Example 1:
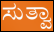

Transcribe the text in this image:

ಸುತ್ವಾ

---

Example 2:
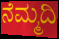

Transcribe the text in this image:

ನೆಮ್ಮದಿ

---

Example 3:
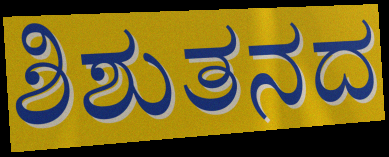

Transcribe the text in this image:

ಶಿಶುತನದ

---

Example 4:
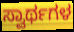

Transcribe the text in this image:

ಸ್ವಾರ್ಥಗಳ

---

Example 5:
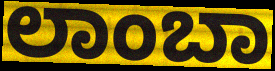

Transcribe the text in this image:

ಲಾಂಬಾ